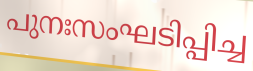
പുനഃസംഘടിപ്പിച്ച